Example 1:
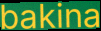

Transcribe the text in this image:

bakina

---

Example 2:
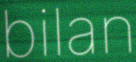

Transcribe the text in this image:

bilan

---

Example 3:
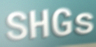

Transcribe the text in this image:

SHGs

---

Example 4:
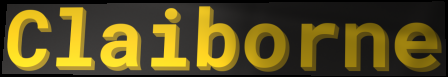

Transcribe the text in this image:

Claiborne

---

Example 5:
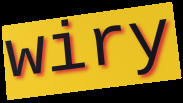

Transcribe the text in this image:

wiry